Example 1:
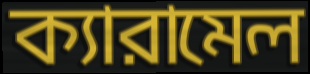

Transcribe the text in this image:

ক্যারামেল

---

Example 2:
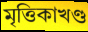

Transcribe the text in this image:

মৃত্তিকাখণ্ড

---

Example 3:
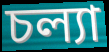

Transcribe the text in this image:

চল্যা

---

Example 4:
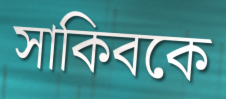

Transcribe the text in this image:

সাকিবকে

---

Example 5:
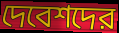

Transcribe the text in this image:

দেবেশদের